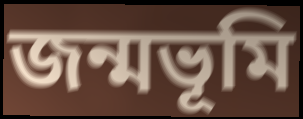
জন্মভূমি